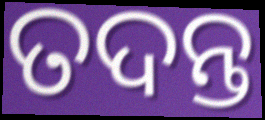
ତଦନ୍ତ